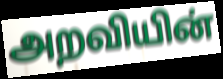
அறவியின்